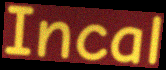
Incal